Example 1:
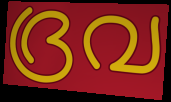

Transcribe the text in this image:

ദ്രവ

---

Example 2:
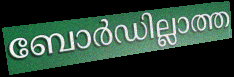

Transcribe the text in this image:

ബോർഡില്ലാത്ത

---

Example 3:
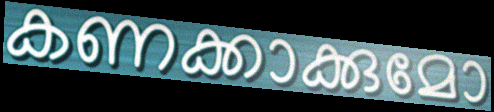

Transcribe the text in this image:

കണക്കാക്കുമോ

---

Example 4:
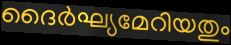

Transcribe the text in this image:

ദൈർഘ്യമേറിയതും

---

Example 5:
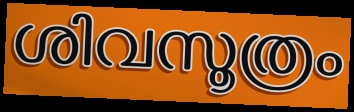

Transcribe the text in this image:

ശിവസൂത്രം